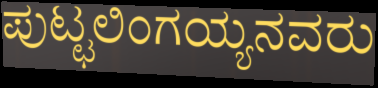
ಪುಟ್ಟಲಿಂಗಯ್ಯನವರು